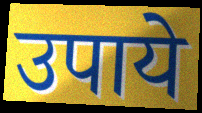
उपाये